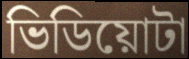
ভিডিয়োটা